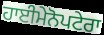
ਹਾਈਮੇਨੋਪਟੇਰਾ